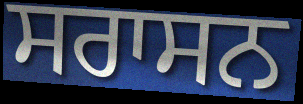
ਸਰਾਸਨ